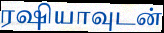
ரஷியாவுடன்